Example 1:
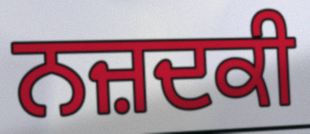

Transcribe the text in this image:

ਨਜ਼ਦਕੀ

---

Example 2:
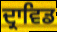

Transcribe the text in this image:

ਦ੍ਰਾਵਿਡ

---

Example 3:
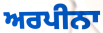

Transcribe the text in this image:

ਅਰਪੀਨਾ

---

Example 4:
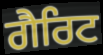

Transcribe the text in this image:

ਗੈਰਿਟ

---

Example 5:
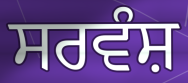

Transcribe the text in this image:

ਸਰਵੰਸ਼